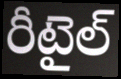
రీటైల్